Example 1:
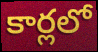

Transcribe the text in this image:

కార్లలో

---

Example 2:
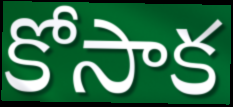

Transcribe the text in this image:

కోసాక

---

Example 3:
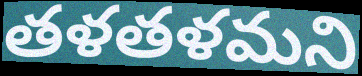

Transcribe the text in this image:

తళతళమని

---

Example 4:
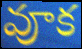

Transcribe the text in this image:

వూక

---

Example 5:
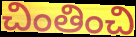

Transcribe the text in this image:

చింతించి